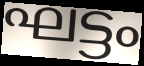
ഘട്ടം